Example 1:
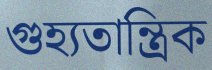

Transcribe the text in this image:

গুহ্যতান্ত্ৰিক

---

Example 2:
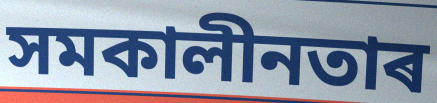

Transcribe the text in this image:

সমকালীনতাৰ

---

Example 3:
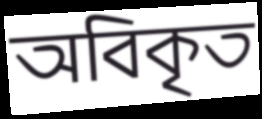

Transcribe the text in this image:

অবিকৃত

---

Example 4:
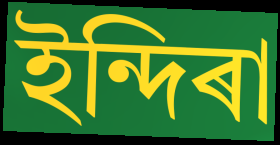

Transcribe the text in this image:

ইন্দিৰা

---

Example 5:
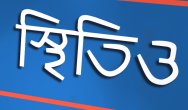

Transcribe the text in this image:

স্থিতিও